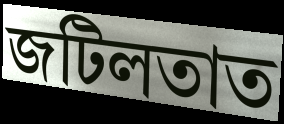
জটিলতাত